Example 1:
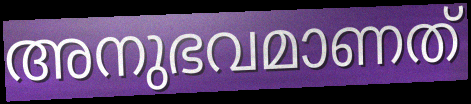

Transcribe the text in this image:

അനുഭവമാണത്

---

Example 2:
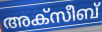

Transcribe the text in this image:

അക്സീബ്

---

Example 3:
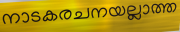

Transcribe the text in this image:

നാടകരചനയല്ലാത്ത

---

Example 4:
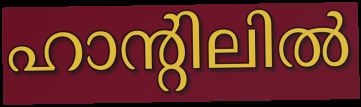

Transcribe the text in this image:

ഹാന്റിലിൽ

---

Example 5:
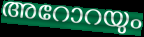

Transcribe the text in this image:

അറോറയും